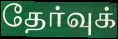
தேர்வுக்